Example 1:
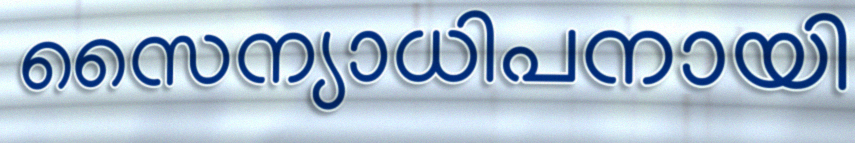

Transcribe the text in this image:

സൈന്യാധിപനായി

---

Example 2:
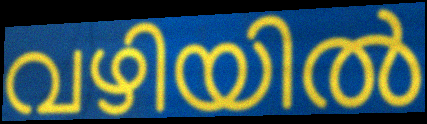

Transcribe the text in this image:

വഴിയിൽ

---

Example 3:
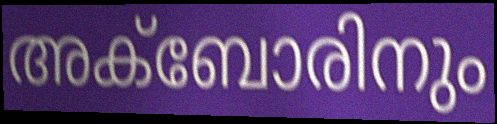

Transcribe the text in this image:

അക്ബോരിനും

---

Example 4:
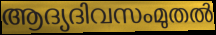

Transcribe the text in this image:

ആദ്യദിവസംമുതൽ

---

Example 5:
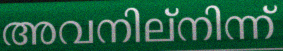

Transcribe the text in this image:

അവനില്നിന്ന്